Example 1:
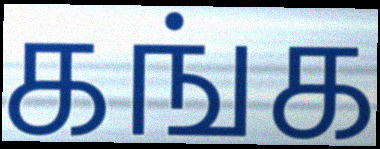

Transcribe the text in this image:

கங்க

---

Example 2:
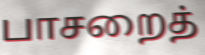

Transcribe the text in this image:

பாசறைத்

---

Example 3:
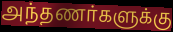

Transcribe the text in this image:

அந்தணர்களுக்கு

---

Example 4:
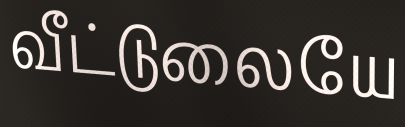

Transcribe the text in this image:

வீட்டுலையே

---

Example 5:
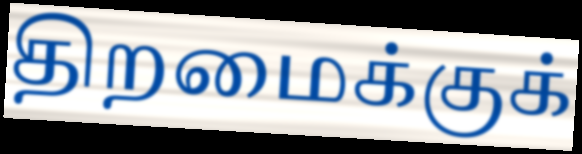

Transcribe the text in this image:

திறமைக்குக்